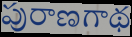
పురాణగాథ